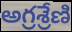
అగ్రశ్రేణి